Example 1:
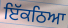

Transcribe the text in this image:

ਇੱਕਠਿਆ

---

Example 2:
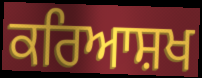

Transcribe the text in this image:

ਕਰਿਆਸ਼ਖ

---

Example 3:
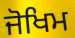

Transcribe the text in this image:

ਜੋਖਿਮ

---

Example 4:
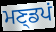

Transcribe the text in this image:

ਮਣ੍ਡਪਂ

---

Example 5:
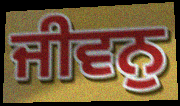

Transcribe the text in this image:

ਜੀਵਨੁ